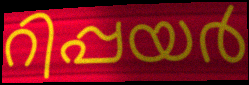
റിപ്പയർ